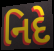
નિદે